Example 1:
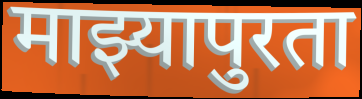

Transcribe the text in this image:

माझ्यापुरता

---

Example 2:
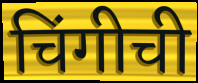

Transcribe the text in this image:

चिंगीची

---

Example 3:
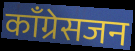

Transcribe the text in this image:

काँग्रेसजन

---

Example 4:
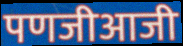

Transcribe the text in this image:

पणजीआजी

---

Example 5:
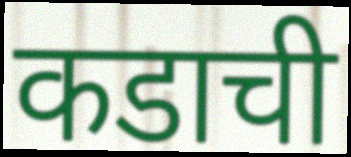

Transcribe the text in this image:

कडाची